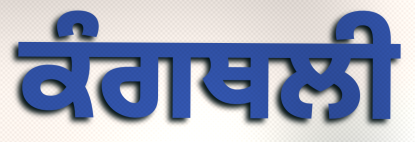
ਕੰਗਥਲੀ